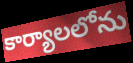
కార్యాలలోను